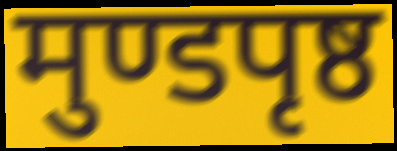
मुण्डपृष्ठ